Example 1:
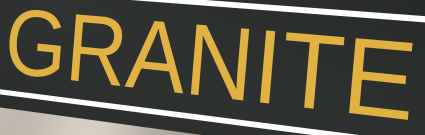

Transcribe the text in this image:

GRANITE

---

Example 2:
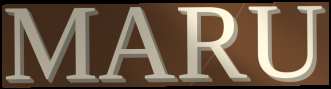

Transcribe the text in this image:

MARU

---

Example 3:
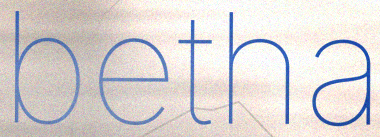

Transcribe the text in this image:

betha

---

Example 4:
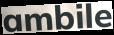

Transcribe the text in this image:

ambile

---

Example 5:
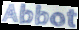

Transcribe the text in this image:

Abbot